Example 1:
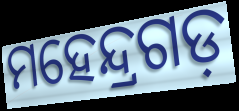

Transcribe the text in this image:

ମହେନ୍ଦ୍ରଗଡ଼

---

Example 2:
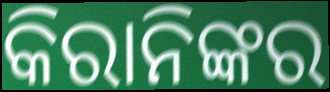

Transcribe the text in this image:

କିରାନିଙ୍କର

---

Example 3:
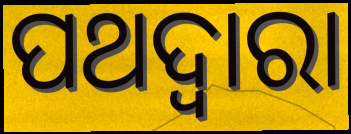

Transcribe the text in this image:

ପଥଦ୍ଵାରା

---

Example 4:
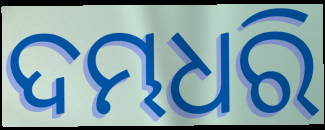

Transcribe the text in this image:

ଦମ୍ଭଧରି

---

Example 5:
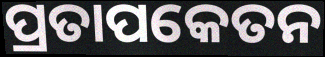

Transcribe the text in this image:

ପ୍ରତାପକେତନ